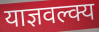
याज्ञवल्क्य